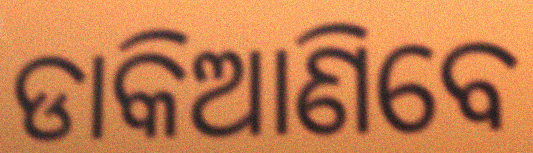
ଡାକିଆଣିବେ